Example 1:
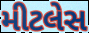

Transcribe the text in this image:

મીટલેસ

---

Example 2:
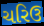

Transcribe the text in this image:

ચરિઉ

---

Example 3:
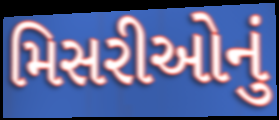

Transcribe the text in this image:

મિસરીઓનું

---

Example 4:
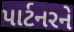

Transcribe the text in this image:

પાર્ટનરને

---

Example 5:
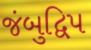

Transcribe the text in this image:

જંબુદ્વિપ